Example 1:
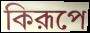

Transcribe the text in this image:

কিরূপে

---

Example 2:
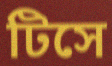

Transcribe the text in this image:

টিসে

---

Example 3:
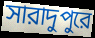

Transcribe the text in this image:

সারাদুপুরে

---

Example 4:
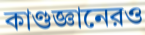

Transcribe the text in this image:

কাণ্ডজ্ঞানেরও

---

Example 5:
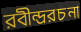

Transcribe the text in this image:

রবীন্দ্ররচনা